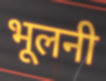
भूलनी